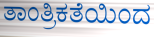
ತಾಂತ್ರಿಕತೆಯಿಂದ